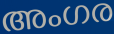
അംഗര